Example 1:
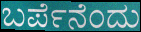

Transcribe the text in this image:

ಬರ್ಪೆನೆಂದು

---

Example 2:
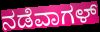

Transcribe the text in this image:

ನಡೆವಾಗಳ್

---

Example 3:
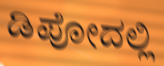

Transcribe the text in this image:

ಡಿಪೋದಲ್ಲಿ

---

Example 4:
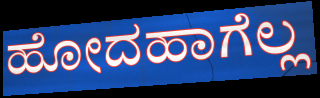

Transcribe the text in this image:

ಹೋದಹಾಗೆಲ್ಲ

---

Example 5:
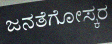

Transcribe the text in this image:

ಜನತೆಗೋಸ್ಕರ